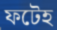
ফটেহ